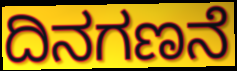
ದಿನಗಣನೆ